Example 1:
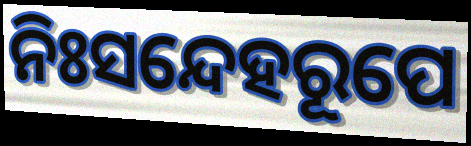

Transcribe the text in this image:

ନିଃସନ୍ଦେହରୂପେ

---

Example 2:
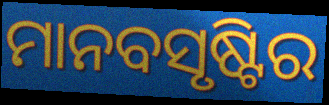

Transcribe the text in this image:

ମାନବସୃଷ୍ଟିର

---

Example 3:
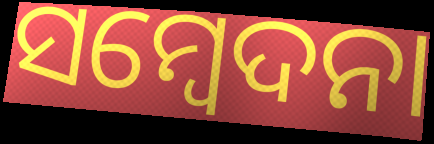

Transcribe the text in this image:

ସମ୍ବେଦନା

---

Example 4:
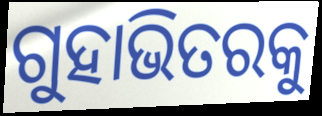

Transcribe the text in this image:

ଗୁହାଭିତରକୁ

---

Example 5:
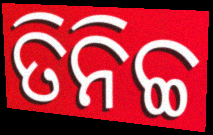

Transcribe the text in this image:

ତିନିଚ୍ଚ